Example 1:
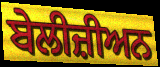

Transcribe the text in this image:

ਬੇਲੀਜ਼ੀਅਨ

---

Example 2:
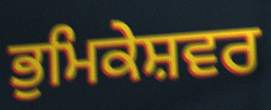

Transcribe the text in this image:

ਭੁਮਿਕੇਸ਼ਵਰ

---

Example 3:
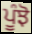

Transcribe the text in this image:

ਪੂੰਝੋ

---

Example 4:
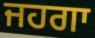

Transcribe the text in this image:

ਜਹਗਾ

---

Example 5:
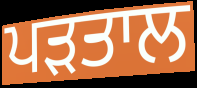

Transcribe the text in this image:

ਪੜਤਾਲ